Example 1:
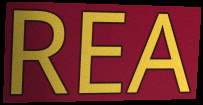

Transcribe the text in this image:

REA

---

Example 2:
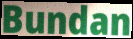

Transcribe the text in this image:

Bundan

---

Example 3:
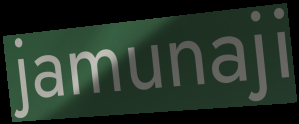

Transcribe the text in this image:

jamunaji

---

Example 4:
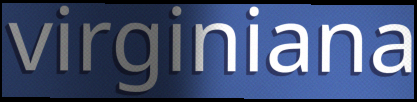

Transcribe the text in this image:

virginiana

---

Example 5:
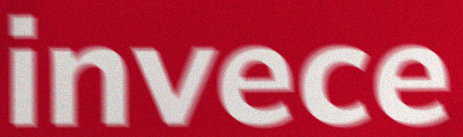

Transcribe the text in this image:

invece